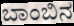
ಬಾಂಬಿನ